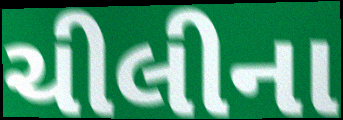
ચીલીના